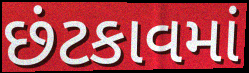
છંટકાવમાં